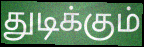
துடிக்கும்